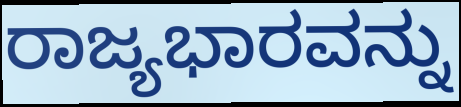
ರಾಜ್ಯಭಾರವನ್ನು